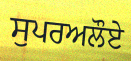
ਸੁਪਰਅਲੌਏ